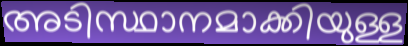
അടിസ്ഥാനമാക്കിയുള്ള